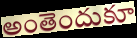
అంతెందుకూ